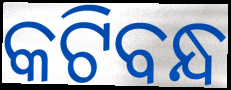
କଟିବନ୍ଧ